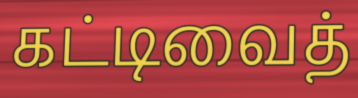
கட்டிவைத்